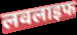
लवलाइफ